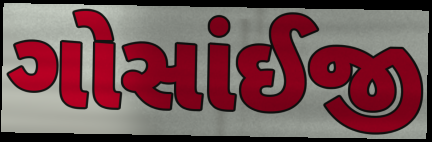
ગોસાંઈજી